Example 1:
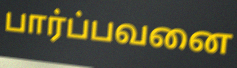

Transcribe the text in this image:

பார்ப்பவனை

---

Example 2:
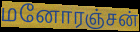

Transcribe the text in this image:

மனோரஞ்சன்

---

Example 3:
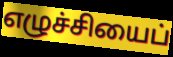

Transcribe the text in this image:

எழுச்சியைப்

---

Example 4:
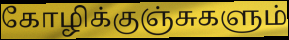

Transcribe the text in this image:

கோழிக்குஞ்சுகளும்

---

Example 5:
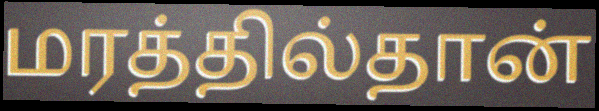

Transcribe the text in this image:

மரத்தில்தான்